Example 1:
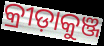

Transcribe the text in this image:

କ୍ରୀଡ଼ାକୁଞ୍ଜ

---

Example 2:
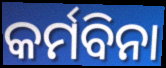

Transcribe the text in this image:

କର୍ମବିନା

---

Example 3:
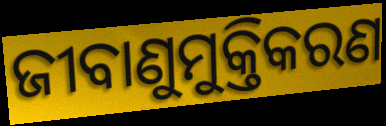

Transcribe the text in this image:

ଜୀବାଣୁମୁକ୍ତିକରଣ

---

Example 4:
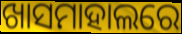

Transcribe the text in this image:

ଖାସମାହାଲରେ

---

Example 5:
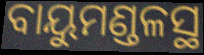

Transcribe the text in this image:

ବାୟୁମଣ୍ଡଳସ୍ଥ